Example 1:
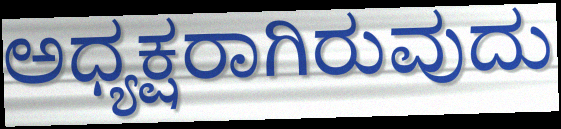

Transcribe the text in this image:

ಅಧ್ಯಕ್ಷರಾಗಿರುವುದು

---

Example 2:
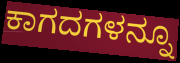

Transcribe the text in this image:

ಕಾಗದಗಳನ್ನೂ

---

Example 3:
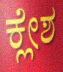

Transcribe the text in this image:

ಕ್ಲೇಶ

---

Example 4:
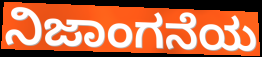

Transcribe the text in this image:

ನಿಜಾಂಗನೆಯ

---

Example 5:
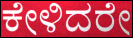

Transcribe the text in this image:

ಕೇಳಿದರೇ